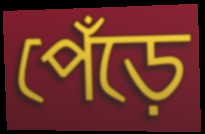
পেঁড়ে